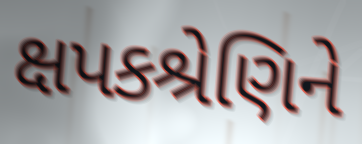
ક્ષપકશ્રેણિને